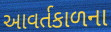
આવર્તકાળના